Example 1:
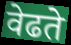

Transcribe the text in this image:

वेढते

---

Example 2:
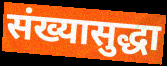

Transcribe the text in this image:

संख्यासुद्धा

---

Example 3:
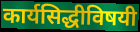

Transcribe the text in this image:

कार्यसिद्धीविषयी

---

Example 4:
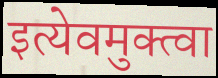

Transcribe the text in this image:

इत्येवमुक्त्वा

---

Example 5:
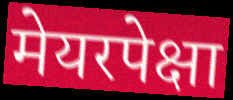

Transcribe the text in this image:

मेयरपेक्षा